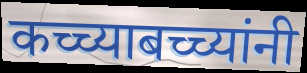
कच्च्याबच्च्यांनी